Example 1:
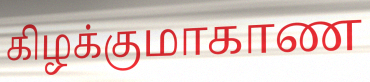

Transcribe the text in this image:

கிழக்குமாகாண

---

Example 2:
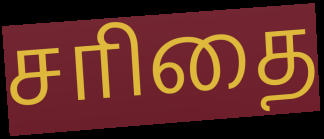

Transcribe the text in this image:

சரிதை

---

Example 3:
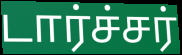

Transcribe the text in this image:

டார்ச்சர்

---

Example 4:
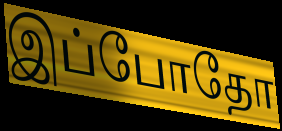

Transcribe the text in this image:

இப்போதோ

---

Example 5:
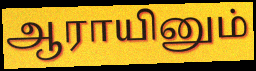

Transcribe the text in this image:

ஆராயினும்